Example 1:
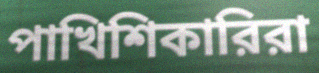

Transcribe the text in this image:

পাখিশিকারিরা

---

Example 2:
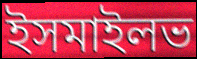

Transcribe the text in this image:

ইসমাইলভ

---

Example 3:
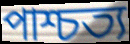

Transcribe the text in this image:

পাশ্চত্য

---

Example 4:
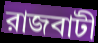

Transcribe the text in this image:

রাজবাটী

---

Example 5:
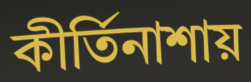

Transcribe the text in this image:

কীর্তিনাশায়